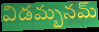
విడమ్బనమ్